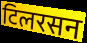
टिलरसन